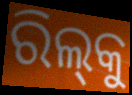
ରିଲ୍‌କୁ